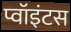
प्वॉइंटस